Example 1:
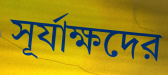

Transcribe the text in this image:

সূর্যাক্ষদের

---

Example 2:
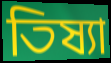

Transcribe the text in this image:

তিষ্যা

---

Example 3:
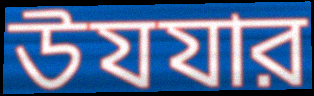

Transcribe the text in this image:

উযযার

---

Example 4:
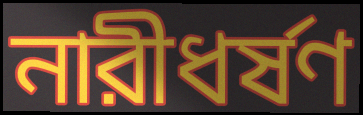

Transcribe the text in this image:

নারীধর্ষণ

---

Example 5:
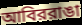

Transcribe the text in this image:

আবিররাঙা